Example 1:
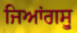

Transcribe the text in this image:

ਜਿਆਂਗਸੂ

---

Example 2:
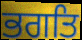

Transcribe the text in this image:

ਭਗਤਿ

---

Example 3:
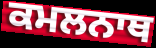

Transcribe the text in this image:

ਕਮਲਨਾਥ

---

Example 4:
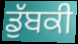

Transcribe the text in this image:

ਡੁੱਬਕੀ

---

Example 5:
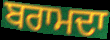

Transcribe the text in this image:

ਬਰਾਮਦਾ